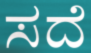
ಸದೆ